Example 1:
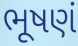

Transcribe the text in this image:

ભૂષણં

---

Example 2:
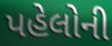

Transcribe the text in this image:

પહેલોની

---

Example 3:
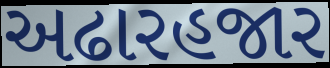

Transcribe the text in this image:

અઢારહજાર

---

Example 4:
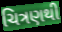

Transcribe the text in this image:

ચિત્રણથી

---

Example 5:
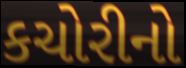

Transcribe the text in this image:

કચોરીનો